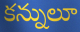
కన్నులూ